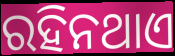
ରହିନଥାଏ